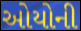
ઓયોની